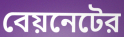
বেয়নেটের